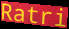
Ratri